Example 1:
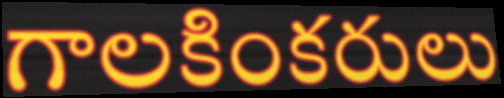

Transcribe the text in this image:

గాలకింకరులు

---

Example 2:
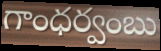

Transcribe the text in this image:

గాంధర్వంబు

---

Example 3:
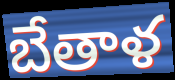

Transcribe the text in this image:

బేతాళ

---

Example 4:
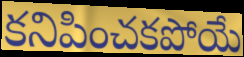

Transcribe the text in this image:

కనిపించకపోయే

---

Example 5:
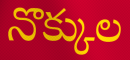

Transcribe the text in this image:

నొక్కుల